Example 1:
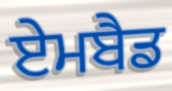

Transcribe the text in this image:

ਏਮਬੈਡ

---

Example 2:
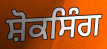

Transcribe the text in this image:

ਸ਼ੋਕਸਿੰਗ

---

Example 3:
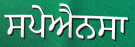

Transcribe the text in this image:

ਸਪੇਐਨਸਾ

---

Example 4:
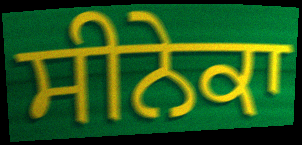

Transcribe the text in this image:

ਸੀਨੇਕਾ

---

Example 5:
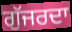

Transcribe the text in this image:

ਗੁੱਜਰਦਾ